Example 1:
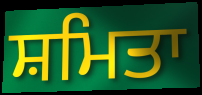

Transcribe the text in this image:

ਸ਼ਮਿਤਾ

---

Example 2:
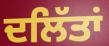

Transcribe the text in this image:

ਦਲਿੱਤਾਂ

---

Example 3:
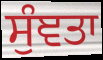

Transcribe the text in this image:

ਸੁੰਞਤਾ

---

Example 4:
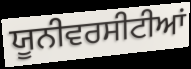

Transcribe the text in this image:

ਯੂਨੀਵਰਸੀਟੀਆਂ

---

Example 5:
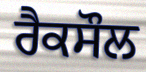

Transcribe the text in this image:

ਰੈਕਸੌਲ